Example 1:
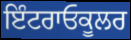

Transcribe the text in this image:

ਇੰਟਰਾਓਕੂਲਰ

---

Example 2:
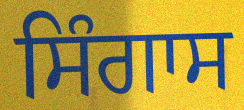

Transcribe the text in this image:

ਸਿੰਗਾਸ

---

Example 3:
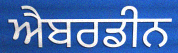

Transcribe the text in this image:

ਐਬਰਡੀਨ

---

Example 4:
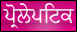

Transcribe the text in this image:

ਪ੍ਰੋਲੇਪਟਿਕ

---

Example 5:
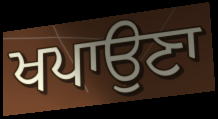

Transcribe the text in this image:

ਖਪਾਉਣਾ